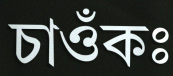
চাওঁকঃ